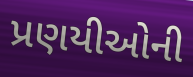
પ્રણયીઓની